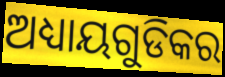
ଅଧ୍ୟାୟଗୁଡିକର